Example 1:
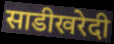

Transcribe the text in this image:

साडीखरेदी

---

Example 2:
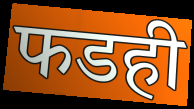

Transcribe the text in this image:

फडही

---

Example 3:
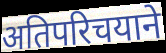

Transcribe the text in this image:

अतिपरिचयाने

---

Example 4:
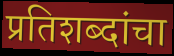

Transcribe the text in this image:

प्रतिशब्दांचा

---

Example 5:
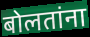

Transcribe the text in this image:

बोलतांना